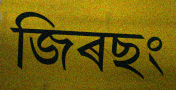
জিৰছং